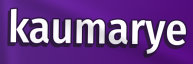
kaumarye